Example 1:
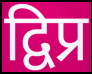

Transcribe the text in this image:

द्विप्र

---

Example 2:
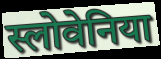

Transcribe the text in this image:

स्लोवेनिया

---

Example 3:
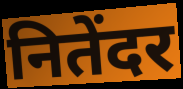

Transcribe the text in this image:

नितेंदर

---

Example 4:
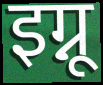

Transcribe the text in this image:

इग्नू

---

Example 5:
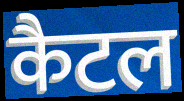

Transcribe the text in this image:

कैटल